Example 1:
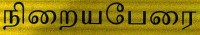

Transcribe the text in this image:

நிறையபேரை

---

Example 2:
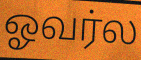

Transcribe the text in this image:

ஓவர்ல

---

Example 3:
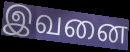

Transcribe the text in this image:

இவனை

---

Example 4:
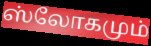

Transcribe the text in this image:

ஸ்லோகமும்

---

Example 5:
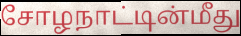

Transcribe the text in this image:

சோழநாட்டின்மீது